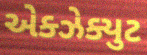
એક્ઝેક્યુટ